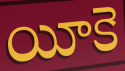
యీకె